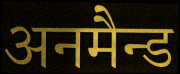
अनमैन्ड